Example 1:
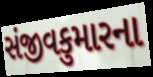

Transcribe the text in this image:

સંજીવકુમારના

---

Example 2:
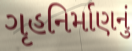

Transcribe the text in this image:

ગૃહનિર્માણનું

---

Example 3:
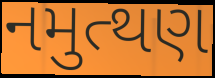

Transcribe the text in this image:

નમુત્થણ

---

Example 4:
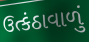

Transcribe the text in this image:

ઉત્કંઠાવાળું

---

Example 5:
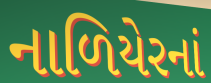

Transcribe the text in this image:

નાળિયેરનાં